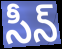
సీన్